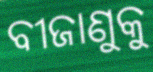
ବୀଜାଣୁକୁ